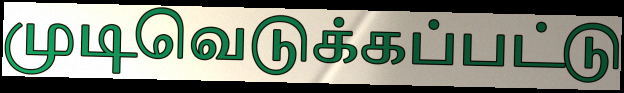
முடிவெடுக்கப்பட்டு